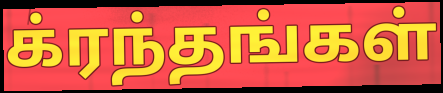
க்ரந்தங்கள்